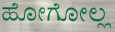
ಹೋಗೋಲ್ಲ